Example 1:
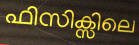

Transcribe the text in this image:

ഫിസിക്സിലെ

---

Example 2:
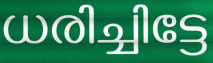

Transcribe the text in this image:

ധരിച്ചിട്ടേ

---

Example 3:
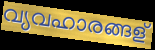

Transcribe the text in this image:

വ്യവഹാരങ്ങള്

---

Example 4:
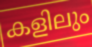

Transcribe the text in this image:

കളിലും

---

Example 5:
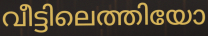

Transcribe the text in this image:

വീട്ടിലെത്തിയോ